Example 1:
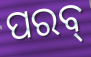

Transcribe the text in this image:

ପରବ୍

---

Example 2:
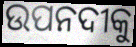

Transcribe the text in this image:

ଉପନଦୀକୁ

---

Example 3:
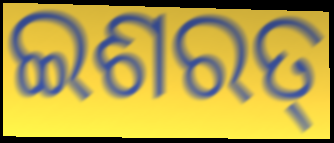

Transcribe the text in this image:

ଇଶରତ୍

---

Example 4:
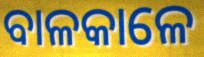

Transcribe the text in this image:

ବାଳକାଳେ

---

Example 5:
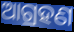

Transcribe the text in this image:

ଆଗ୍ରହଣ